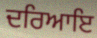
ਦਰਿਆਇ